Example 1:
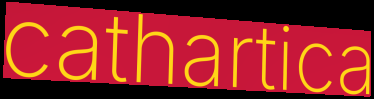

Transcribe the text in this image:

cathartica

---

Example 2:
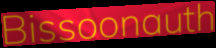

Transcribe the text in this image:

Bissoonauth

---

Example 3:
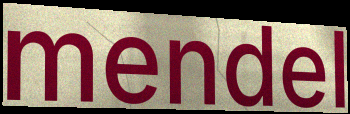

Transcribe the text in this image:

mendel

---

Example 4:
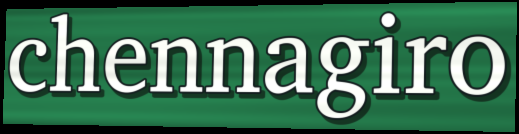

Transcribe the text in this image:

chennagiro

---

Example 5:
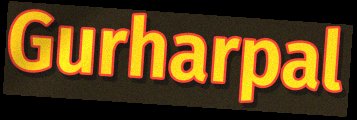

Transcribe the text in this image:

Gurharpal